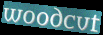
woodcut